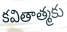
కవితాత్మకు